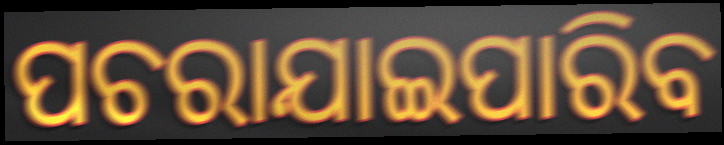
ପଚରାଯାଇପାରିବ